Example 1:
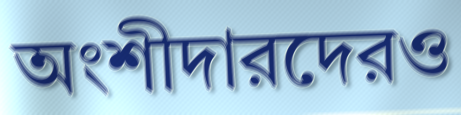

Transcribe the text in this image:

অংশীদারদেরও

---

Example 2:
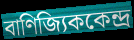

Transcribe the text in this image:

বাণিজ্যিককেন্দ্র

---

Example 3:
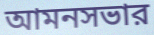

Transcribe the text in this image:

আমনসভার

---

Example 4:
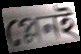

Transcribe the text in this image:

প্লেনই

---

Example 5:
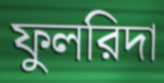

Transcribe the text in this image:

ফুলরিদা